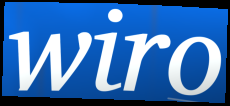
wiro